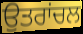
ਉਤਰਾਂਚਲ